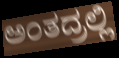
ಅಂತದ್ರಲ್ಲಿ